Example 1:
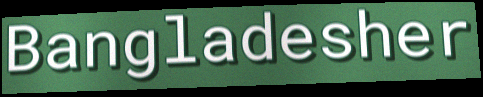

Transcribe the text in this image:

Bangladesher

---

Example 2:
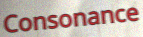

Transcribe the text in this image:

Consonance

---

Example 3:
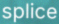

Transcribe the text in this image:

splice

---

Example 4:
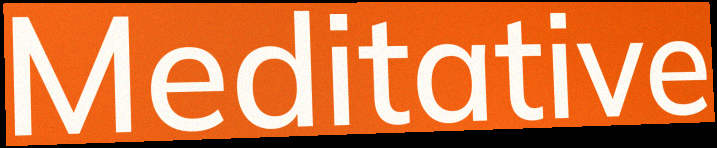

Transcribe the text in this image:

Meditative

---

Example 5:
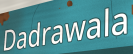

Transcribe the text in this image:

Dadrawala